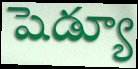
షెడ్యూ